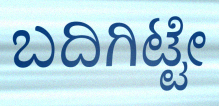
ಬದಿಗಿಟ್ಟೇ